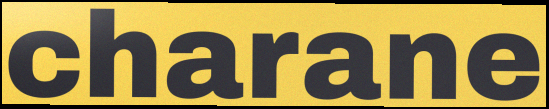
charane